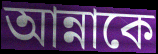
আন্নাকে